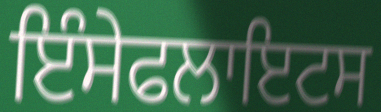
ਇੰਸੇਫਲਾਇਟਸ